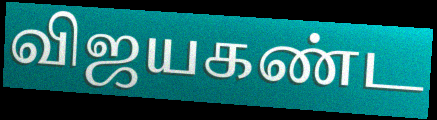
விஜயகண்ட